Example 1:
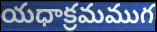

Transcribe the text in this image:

యధాక్రమముగ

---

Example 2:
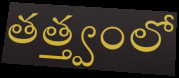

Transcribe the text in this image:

తత్త్వంలో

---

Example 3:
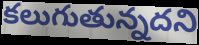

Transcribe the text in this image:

కలుగుతున్నదని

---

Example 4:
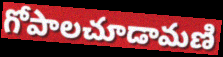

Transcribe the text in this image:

గోపాలచూడామణి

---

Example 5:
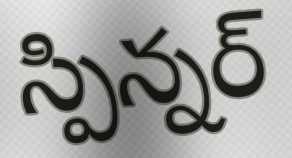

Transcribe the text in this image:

స్పిన్నర్